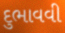
દુભાવવી